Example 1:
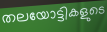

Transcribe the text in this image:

തലയോട്ടികളുടെ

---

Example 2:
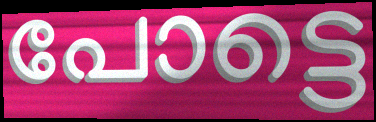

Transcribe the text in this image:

പോട്ടെ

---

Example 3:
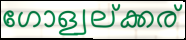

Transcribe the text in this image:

ഗോള്വല്ക്കര്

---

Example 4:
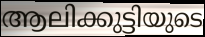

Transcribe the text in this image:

ആലിക്കുട്ടിയുടെ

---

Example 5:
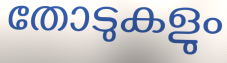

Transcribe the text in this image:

തോടുകളും